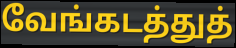
வேங்கடத்துத்